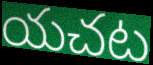
యచట